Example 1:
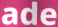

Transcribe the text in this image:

ade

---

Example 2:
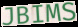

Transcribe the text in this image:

JBIMS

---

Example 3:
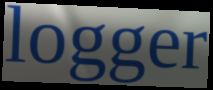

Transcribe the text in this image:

logger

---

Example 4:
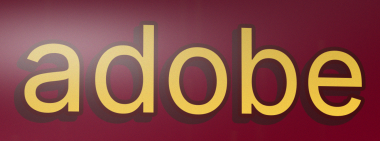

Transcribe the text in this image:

adobe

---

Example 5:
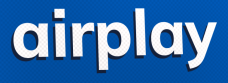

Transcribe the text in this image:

airplay